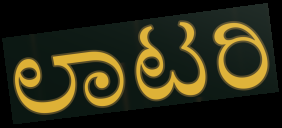
ಲಾಟರಿ